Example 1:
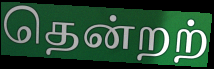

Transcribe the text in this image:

தென்றற்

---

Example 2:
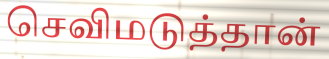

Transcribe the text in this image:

செவிமடுத்தான்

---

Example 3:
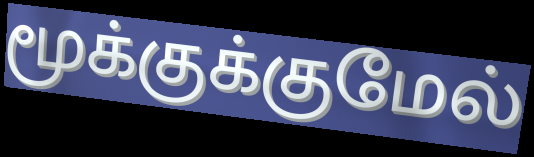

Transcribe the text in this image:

மூக்குக்குமேல்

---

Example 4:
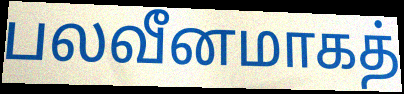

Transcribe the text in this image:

பலவீனமாகத்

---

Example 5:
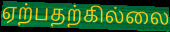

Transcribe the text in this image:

ஏற்பதற்கில்லை